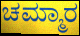
ಚಮ್ಮಾರ